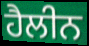
ਹੈਲੀਨ